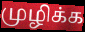
முழிக்க